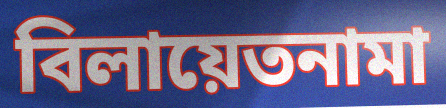
বিলায়েতনামা